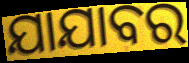
ଯାଯାବର